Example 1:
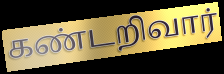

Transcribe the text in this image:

கண்டறிவார்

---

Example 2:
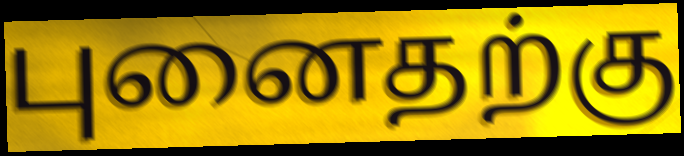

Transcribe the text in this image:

புனைதற்கு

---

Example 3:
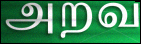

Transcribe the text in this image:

அறவ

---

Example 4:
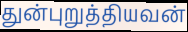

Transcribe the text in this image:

துன்புறுத்தியவன்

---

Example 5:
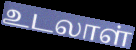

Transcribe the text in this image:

உடலாள்